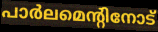
പാർലമെന്റിനോട്